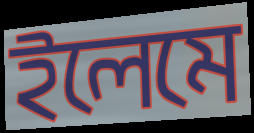
ইলেমে